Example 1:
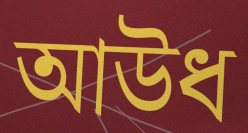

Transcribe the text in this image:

আউধ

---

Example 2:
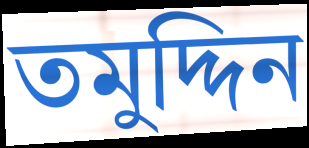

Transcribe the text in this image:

তমুদ্দিন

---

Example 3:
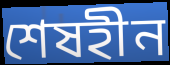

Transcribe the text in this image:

শেষহীন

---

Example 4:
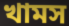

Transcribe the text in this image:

খামস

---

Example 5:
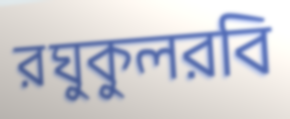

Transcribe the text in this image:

রঘুকুলরবি